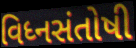
વિધ્નસંતોષી